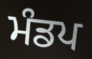
ਮੰਡਪ